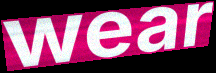
wear